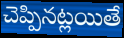
చెప్పినట్లయితే